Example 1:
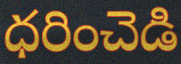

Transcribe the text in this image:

ధరించెడి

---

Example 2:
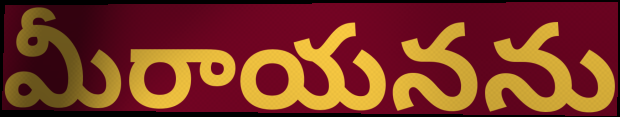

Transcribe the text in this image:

మీరాయనను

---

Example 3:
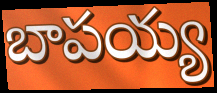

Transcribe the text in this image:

బాపయ్య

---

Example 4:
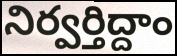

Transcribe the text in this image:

నిర్వర్తిద్దాం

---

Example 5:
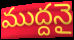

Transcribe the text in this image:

ముద్దనై